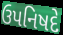
ઉપનિષદે